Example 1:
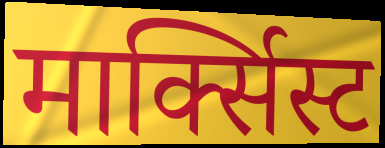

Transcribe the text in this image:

मार्क्सिस्ट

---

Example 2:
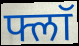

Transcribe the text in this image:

फ्लॉ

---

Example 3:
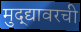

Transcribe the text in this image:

मुद्द्यावरची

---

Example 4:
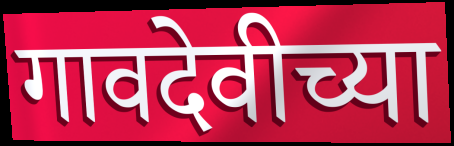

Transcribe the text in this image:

गावदेवीच्या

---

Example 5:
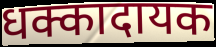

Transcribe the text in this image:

धक्कादायक